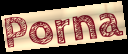
Porna